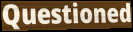
Questioned